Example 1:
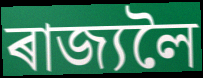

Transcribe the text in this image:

ৰাজ্যলৈ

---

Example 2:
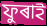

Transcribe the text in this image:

ফুৰাই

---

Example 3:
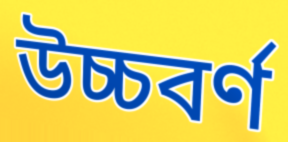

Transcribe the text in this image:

উচ্চবৰ্ণ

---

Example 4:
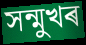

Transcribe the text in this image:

সন্মুখৰ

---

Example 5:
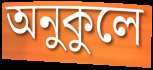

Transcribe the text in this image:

অনুকুলে